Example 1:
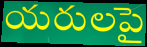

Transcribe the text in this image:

యరులపై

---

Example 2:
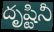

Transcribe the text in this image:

దృష్టినీ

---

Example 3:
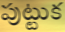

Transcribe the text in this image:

పుట్టుక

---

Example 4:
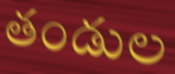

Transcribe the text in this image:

తండుల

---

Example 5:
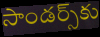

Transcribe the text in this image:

సాండర్స్‌కు